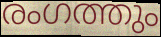
രംഗത്തും